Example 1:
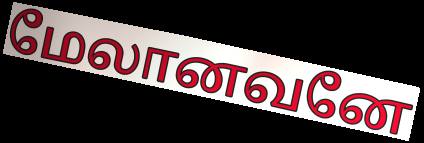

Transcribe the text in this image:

மேலானவனே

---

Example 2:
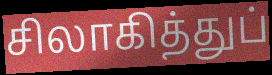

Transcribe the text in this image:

சிலாகித்துப்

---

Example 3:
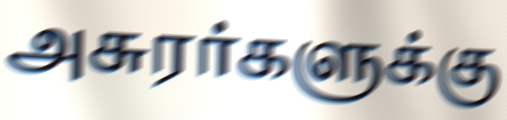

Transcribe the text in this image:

அசுரர்களுக்கு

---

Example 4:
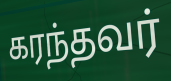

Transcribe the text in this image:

கரந்தவர்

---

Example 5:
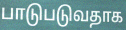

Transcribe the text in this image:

பாடுபடுவதாக